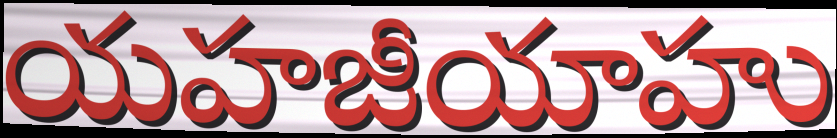
యహజీయాహు